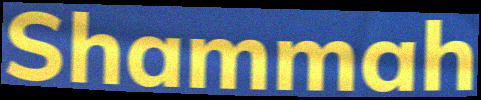
Shammah